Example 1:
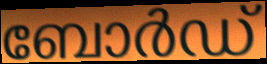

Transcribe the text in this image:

ബോർഡ്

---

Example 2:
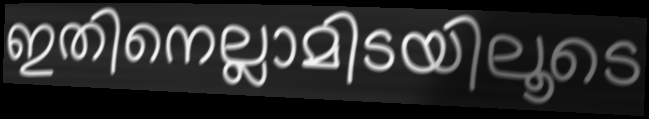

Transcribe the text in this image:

ഇതിനെല്ലാമിടയിലൂടെ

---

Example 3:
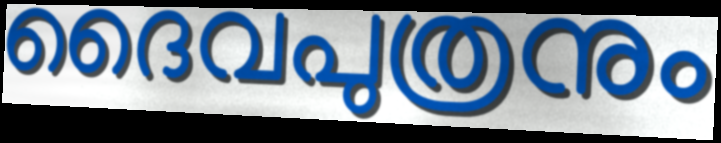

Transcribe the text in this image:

ദൈവപുത്രനും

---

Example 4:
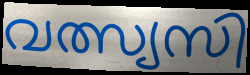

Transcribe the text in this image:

വത്സ്യസി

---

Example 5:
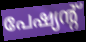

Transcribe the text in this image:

പേഷ്യന്റ്